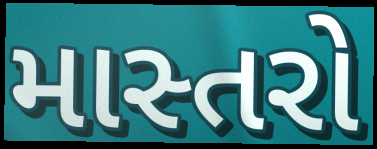
માસ્તરો